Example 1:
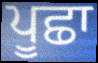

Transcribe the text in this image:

ਪੂਛਾ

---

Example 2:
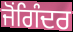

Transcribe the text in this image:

ਜੋਂਗਿੰਦਰ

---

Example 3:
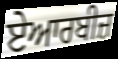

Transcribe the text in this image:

ਏਆਰਬੀਜ਼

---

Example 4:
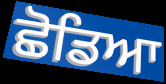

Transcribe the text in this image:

ਛੋਡਿਆ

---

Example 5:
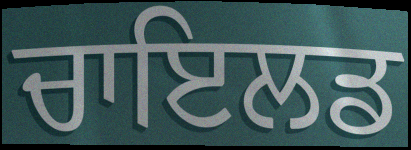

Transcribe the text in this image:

ਚਾਇਲਡ